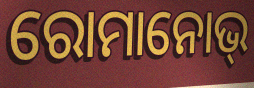
ରୋମାନୋଭ୍